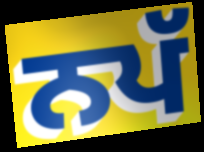
ਨਪੱ